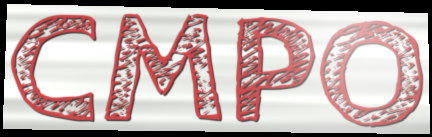
CMPO